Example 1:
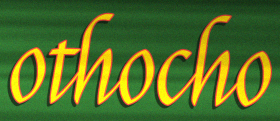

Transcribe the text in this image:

othocho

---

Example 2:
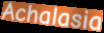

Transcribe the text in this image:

Achalasia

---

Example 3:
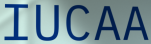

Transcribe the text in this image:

IUCAA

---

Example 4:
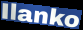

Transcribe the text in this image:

Ilanko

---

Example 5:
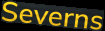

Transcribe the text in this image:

Severns